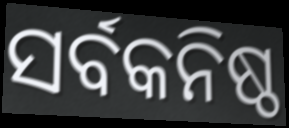
ସର୍ବକନିଷ୍ଠ